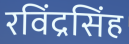
रविंद्रसिंह